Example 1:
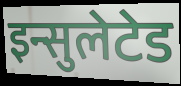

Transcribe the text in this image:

इन्सुलेटेड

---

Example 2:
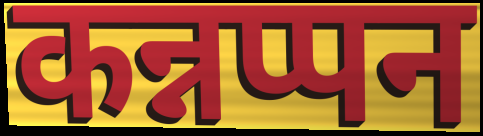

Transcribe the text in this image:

कन्नप्पन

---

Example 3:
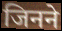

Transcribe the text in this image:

जिनने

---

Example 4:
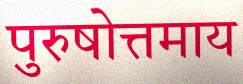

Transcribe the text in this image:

पुरुषोत्तमाय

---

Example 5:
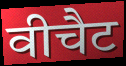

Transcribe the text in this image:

वीचैट